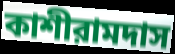
কাশীরামদাস